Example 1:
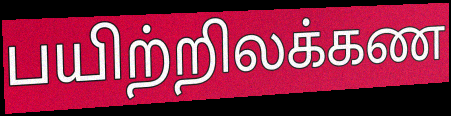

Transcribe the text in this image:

பயிற்றிலக்கண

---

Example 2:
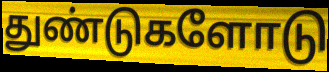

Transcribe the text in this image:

துண்டுகளோடு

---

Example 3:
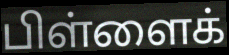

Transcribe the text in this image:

பிள்ளைக்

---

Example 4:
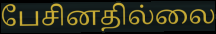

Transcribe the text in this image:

பேசினதில்லை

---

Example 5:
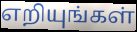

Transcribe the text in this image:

எறியுங்கள்